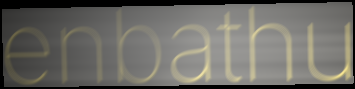
enbathu